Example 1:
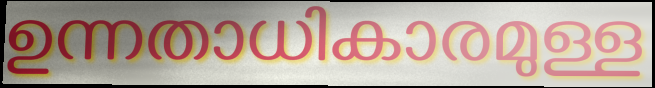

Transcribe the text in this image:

ഉന്നതാധികാരമുള്ള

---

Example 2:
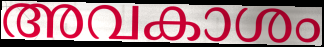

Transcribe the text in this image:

അവകാശം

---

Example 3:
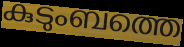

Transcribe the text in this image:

കുടുംബത്തെ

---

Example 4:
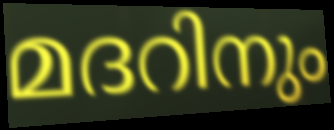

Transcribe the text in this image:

മദറിനും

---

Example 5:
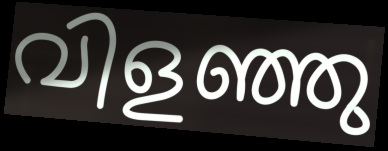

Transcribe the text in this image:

വിളഞ്ഞു